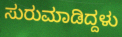
ಸುರುಮಾಡಿದ್ದಳು